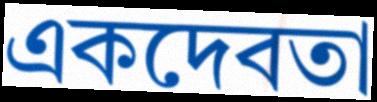
একদেবতা